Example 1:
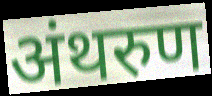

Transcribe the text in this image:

अंथरुण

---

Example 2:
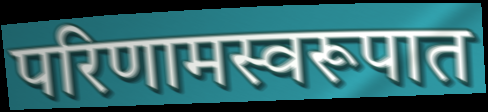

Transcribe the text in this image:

परिणामस्वरूपात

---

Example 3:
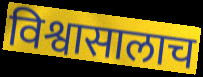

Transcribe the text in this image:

विश्वासालाच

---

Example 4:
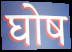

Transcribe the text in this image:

घोष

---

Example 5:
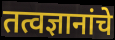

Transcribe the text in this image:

तत्वज्ञानांचे